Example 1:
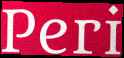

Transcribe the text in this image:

Peri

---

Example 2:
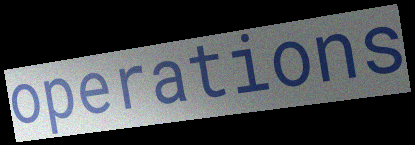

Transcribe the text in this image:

operations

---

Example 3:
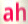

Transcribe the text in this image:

ah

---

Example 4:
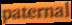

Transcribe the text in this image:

paternal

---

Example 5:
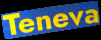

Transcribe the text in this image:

Teneva